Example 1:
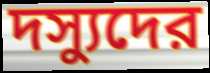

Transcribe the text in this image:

দস্যুদের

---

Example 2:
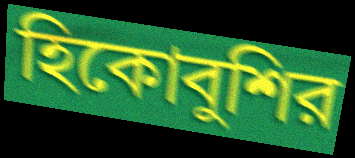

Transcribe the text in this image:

হিকোবুশির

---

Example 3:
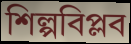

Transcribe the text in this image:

শিল্পবিপ্লব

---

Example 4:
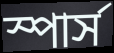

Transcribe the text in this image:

স্পার্স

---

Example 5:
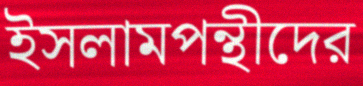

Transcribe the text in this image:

ইসলামপন্থীদের